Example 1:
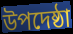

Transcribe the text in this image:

উপদেষ্ঠা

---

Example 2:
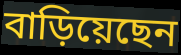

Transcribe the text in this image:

বাড়িয়েছেন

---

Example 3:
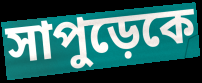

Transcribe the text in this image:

সাপুড়েকে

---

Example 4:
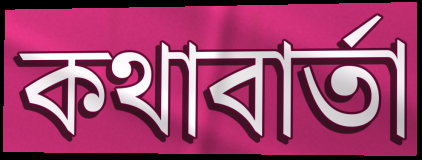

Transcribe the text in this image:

কথাবার্তা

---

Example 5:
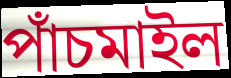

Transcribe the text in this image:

পাঁচমাইল